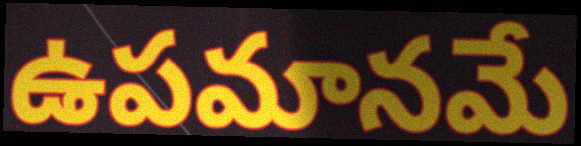
ఉపమానమే